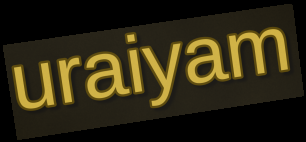
uraiyam